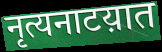
नृत्यनाटय़ात